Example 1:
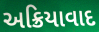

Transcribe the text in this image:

અક્રિયાવાદ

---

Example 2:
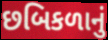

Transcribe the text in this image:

છબિકળાનું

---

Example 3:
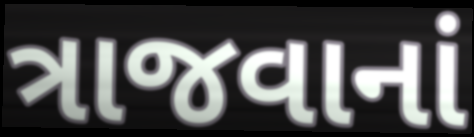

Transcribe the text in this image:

ત્રાજવાનાં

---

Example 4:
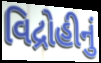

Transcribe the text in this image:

વિદ્રોહીનું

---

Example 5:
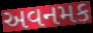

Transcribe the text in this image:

અવનમક